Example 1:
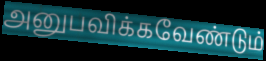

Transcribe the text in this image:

அனுபவிக்கவேண்டும்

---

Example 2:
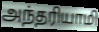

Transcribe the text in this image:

அந்தரியாமி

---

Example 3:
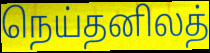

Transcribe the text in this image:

நெய்தனிலத்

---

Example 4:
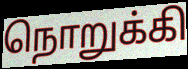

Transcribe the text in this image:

நொறுக்கி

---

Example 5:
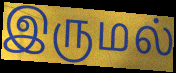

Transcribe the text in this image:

இருமல்